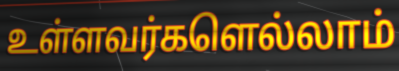
உள்ளவர்களெல்லாம்